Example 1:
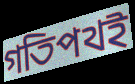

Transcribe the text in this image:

গতিপথই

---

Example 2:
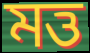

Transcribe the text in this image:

মত্ত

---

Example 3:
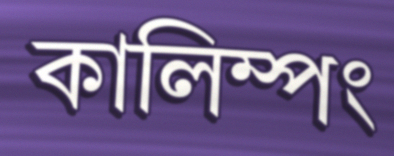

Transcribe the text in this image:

কালিম্পং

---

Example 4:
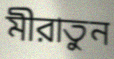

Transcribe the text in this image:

মীরাতুন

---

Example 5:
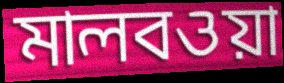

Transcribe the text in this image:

মালবওয়া